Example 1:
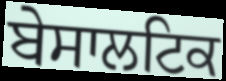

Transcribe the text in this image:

ਬੇਸਾਲਟਿਕ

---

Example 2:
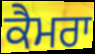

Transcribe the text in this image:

ਕੈਮਰਾ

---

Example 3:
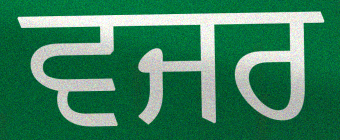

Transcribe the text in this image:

ਵਜਰ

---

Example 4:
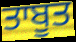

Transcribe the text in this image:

ਤਾਬੂਤ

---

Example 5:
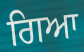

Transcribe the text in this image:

ਗਿਆ